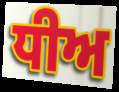
ਧੀਅ